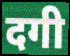
दगी